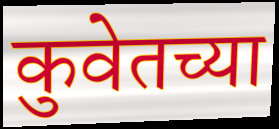
कुवेतच्या